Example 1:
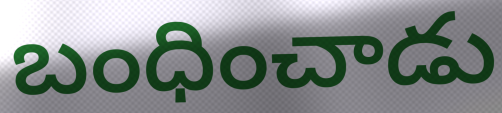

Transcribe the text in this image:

బంధించాడు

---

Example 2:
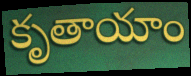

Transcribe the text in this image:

కృతాయాం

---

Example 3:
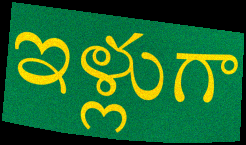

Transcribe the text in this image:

ఇళ్లుగా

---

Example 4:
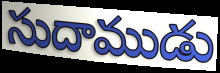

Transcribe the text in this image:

సుదాముడు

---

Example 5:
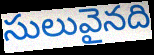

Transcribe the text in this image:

సులువైనది